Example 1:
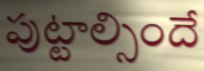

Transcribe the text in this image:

పుట్టాల్సిందే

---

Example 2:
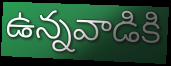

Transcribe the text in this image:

ఉన్నవాడికి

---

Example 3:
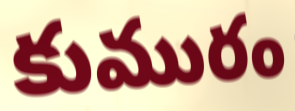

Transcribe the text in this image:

కుమురం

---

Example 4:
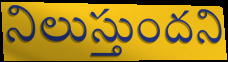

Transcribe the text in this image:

నిలుస్తుందని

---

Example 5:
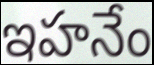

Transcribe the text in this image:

ఇహనేం